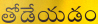
తోడేయడం